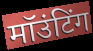
मॉउंटिंग